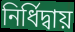
নির্ধিদ্বায়